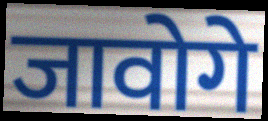
जावोगे